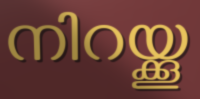
നിറയ്ക്കൂ